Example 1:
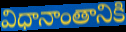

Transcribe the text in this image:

విధానాంతానికి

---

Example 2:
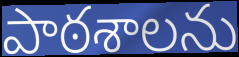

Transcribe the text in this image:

పాఠశాలను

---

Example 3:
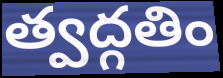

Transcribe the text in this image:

త్వద్గతిం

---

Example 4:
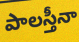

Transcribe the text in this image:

పాలస్తీనా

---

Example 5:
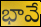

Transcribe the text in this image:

భావే